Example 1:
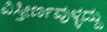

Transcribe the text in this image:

ವಿಸ್ತೀರ್ಣವುಳ್ಳದ್ದು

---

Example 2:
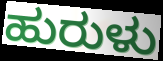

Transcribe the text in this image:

ಹುರುಳು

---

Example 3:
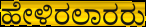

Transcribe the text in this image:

ಹೇಳಿರಲಾರರು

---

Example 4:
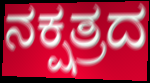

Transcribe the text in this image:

ನಕ್ಷತ್ರದ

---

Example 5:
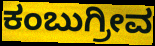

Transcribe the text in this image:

ಕಂಬುಗ್ರೀವ